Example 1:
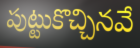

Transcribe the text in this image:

పుట్టుకొచ్చినవే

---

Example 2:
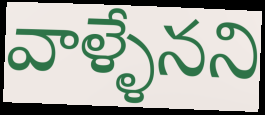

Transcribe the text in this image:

వాళ్ళేనని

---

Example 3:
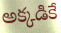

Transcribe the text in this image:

అక్కడికే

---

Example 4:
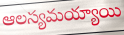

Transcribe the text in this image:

ఆలస్యమయ్యాయి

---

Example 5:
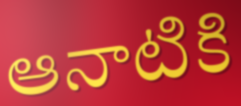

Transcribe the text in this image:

ఆనాటికి